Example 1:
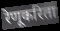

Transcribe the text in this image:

रेणूकरिता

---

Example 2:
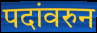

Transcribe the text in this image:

पदांवरुन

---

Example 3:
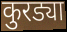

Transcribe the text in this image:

कुरड्या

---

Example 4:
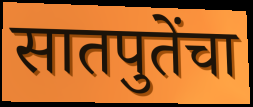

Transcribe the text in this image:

सातपुतेंचा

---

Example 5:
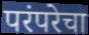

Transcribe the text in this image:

परंपरेचा